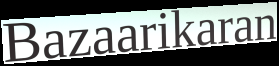
Bazaarikaran